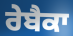
ਰੇਬੈਕਾ